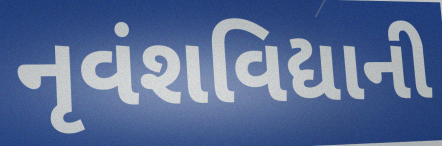
નૃવંશવિદ્યાની